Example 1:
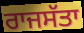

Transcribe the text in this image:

ਰਾਜਸੱਤਾ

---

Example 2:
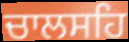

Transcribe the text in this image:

ਚਾਲਸਹਿ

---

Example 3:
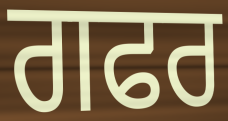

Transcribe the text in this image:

ਗਫਰ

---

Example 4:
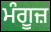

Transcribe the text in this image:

ਮੰਗੂਜ਼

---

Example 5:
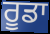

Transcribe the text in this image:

ਰੂਡਾ